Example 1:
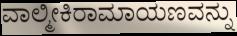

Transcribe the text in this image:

ವಾಲ್ಮೀಕಿರಾಮಾಯಣವನ್ನು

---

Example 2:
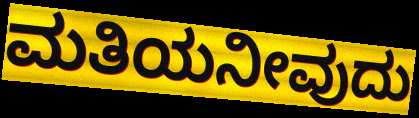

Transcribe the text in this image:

ಮತಿಯನೀವುದು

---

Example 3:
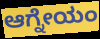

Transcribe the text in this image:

ಆಗ್ನೇಯಂ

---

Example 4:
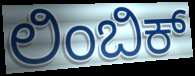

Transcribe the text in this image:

ಲಿಂಬಿಕ್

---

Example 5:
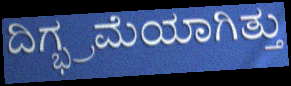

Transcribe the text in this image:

ದಿಗ್ಭ್ರಮೆಯಾಗಿತ್ತು